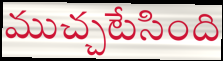
ముచ్చటేసింది